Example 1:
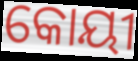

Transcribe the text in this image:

କୋୟୀ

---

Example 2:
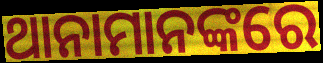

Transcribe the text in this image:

ଥାନାମାନଙ୍କରେ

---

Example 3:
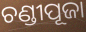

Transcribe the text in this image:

ଚଣ୍ଡୀପୂଜା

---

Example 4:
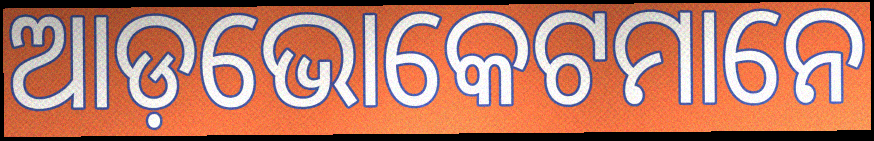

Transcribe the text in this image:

ଆଡ଼ଭୋକେଟମାନେ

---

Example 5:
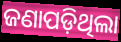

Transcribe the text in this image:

ଜଣାପଡ଼ିଥିଲା